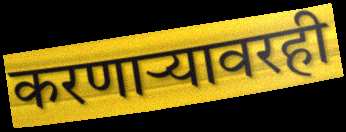
करणाऱ्यावरही